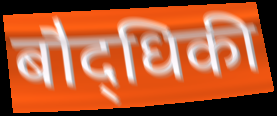
बौद्धिकी